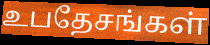
உபதேசங்கள்